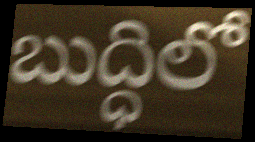
బుద్ధిలో